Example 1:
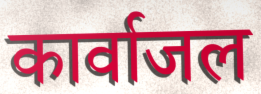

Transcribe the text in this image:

कार्वाजल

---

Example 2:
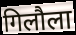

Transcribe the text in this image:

गिलौला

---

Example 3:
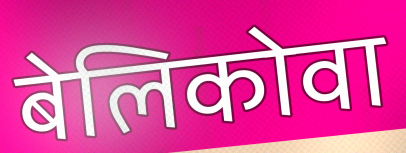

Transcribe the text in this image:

बेलिकोवा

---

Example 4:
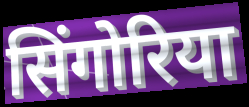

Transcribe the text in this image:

सिंगोरिया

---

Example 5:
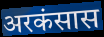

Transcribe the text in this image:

अरकंसास